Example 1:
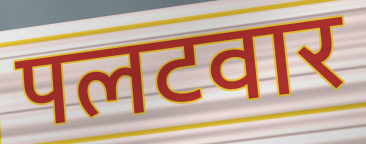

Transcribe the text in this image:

पलटवार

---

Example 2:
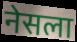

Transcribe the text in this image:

नेसला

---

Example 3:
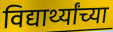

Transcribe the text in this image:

विद्यार्थ्यांच्या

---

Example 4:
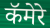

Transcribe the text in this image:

कॅमेरे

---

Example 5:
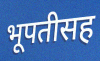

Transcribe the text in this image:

भूपतीसह